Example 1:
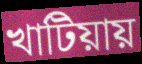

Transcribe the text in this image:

খাটিয়ায়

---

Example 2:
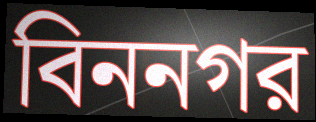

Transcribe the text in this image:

বিননগর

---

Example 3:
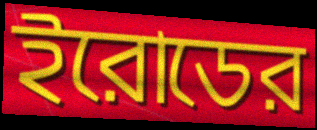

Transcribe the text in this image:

ইরোডের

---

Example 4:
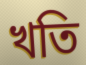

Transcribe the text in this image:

খতি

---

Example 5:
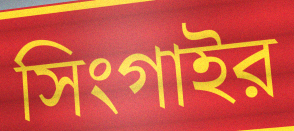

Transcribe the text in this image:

সিংগাইর